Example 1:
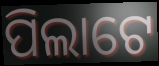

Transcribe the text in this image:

ପିଲାଟେ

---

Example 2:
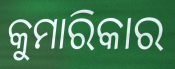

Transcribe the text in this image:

କୁମାରିକାର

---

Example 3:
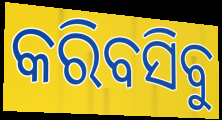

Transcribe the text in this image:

କରିବସିବୁ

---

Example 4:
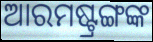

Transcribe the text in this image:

ଆରମଷ୍ଟ୍ରଙ୍ଗଙ୍କ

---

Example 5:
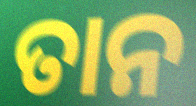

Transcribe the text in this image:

ତାନ